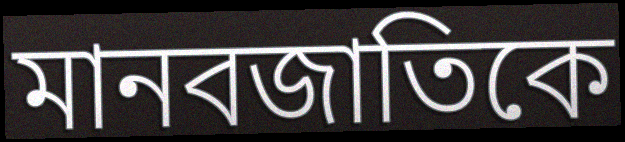
মানবজাতিকে